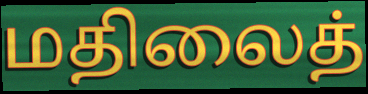
மதிலைத்